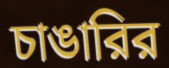
চাঙারির